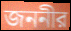
জননীর